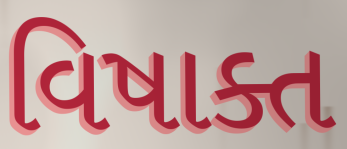
વિષાક્ત